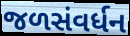
જળસંવર્ધન